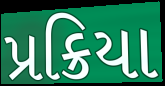
પ્રક્રિયા